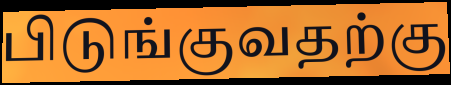
பிடுங்குவதற்கு